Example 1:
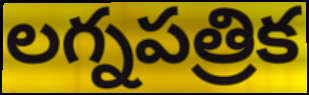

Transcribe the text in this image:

లగ్నపత్రిక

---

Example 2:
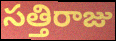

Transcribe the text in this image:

సత్తిరాజు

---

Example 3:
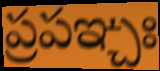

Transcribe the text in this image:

ప్రపఞ్చః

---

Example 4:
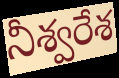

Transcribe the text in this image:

నీశ్వరేశ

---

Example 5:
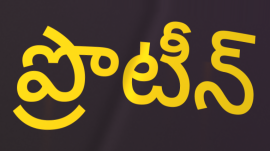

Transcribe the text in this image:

ప్రొటీన్